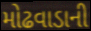
મોઢવાડાની